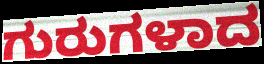
ಗುರುಗಳಾದ